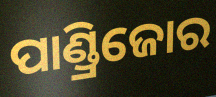
ପାଣ୍ଡ୍ରିଜୋର